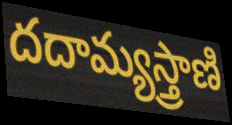
దదామ్యస్త్రాణి